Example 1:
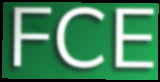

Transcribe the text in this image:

FCE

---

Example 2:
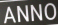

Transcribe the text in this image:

ANNO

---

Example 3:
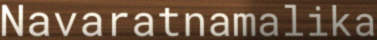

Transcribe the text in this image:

Navaratnamalika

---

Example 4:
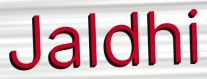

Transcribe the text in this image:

Jaldhi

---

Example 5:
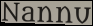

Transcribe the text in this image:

Nannu